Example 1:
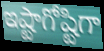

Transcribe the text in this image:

ఇష్టాగోష్టిగా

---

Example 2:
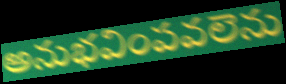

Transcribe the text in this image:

అనుభవింపవలెను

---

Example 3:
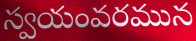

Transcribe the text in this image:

స్వయంవరమున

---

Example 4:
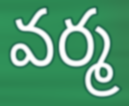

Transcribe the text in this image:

వర్మ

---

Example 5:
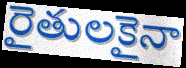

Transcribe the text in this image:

రైతులకైనా